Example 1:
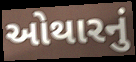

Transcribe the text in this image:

ઓથારનું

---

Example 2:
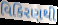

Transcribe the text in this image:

વિકિરણથી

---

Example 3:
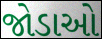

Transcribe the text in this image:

જોડાઓ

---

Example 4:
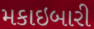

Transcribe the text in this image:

મકાઇબારી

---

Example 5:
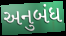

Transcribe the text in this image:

અનુબંધ